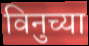
विनुच्या